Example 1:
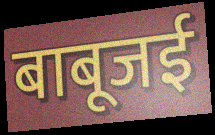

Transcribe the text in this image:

बाबूजई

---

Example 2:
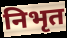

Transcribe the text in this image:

निभृत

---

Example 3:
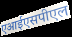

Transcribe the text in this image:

एआईएसपीएल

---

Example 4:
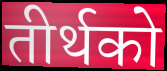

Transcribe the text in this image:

तीर्थको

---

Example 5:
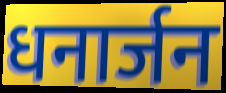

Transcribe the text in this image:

धनार्जन